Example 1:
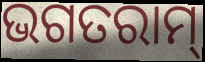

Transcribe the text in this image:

ଭଗତରାମ୍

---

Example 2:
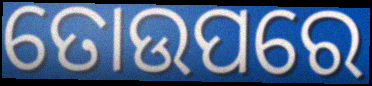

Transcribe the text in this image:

ତୋଉପରେ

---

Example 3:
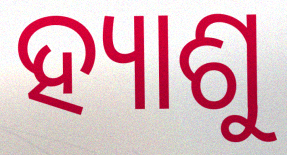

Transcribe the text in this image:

ହ୍ୟାଶୁ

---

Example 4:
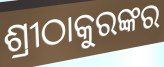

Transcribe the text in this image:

ଶ୍ରୀଠାକୁରଙ୍କର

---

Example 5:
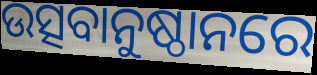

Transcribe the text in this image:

ଉତ୍ସବାନୁଷ୍ଠାନରେ